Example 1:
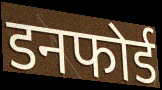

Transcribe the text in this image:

डनफोर्ड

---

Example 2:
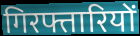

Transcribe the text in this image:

गिरफ्तारियों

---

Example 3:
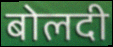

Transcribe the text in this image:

बोलदी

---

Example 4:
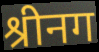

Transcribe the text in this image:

श्रीनग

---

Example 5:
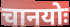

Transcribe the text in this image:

चानयोः